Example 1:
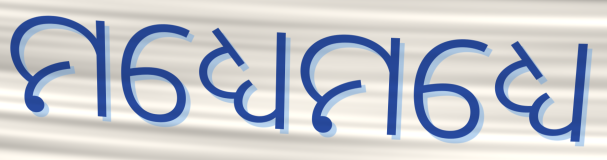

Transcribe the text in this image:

ମଧ୍ୟେମଧ୍ୟେ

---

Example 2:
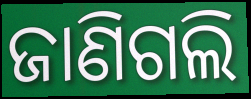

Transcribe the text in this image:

ଜାଣିଗଲି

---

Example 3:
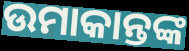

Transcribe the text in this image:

ଉମାକାନ୍ତଙ୍କ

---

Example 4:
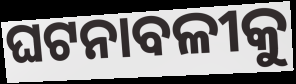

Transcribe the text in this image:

ଘଟନାବଳୀକୁ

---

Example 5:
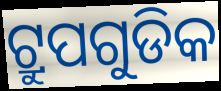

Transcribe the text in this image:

ଟ୍ରୁପଗୁଡିକ